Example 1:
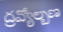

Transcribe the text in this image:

ద్రవ్యోల్బణ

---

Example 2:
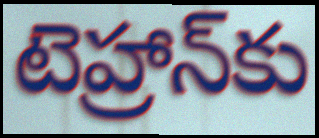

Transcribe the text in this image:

టెహ్రాన్‌కు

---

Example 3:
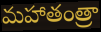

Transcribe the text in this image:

మహాతంత్రా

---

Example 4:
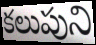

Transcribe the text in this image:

కలుపుని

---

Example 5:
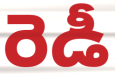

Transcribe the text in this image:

రెడీ